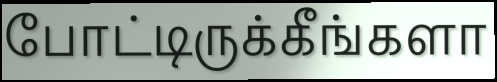
போட்டிருக்கீங்களா